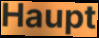
Haupt